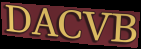
DACVB